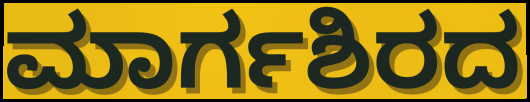
ಮಾರ್ಗಶಿರದ